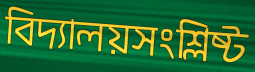
বিদ্যালয়সংশ্লিষ্ট